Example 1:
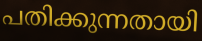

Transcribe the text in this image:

പതിക്കുന്നതായി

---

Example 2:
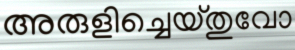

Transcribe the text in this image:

അരുളിച്ചെയ്തുവോ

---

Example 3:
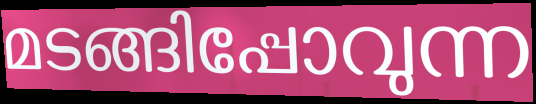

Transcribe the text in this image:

മടങ്ങിപ്പോവുന്ന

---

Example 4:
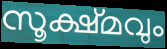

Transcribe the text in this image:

സൂക്ഷ്മവും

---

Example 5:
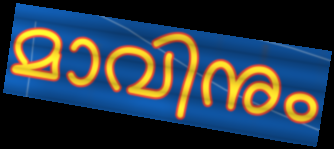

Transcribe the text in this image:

മാവിനും